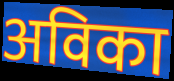
अविका